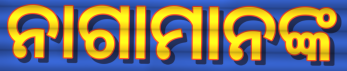
ନାଗାମାନଙ୍କ